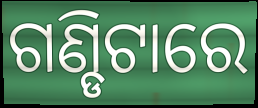
ଗଣ୍ଡିଟାରେ